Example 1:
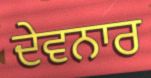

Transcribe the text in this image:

ਦੇਵਨਾਰ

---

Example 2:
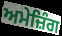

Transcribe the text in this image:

ਅਮੇਜ਼ਿੰਗ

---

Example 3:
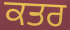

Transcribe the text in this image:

ਕਤਰ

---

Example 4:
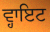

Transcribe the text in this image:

ਵ੍ਹਾਇਟ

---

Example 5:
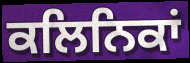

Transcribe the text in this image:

ਕਲਿਨਿਕਾਂ